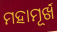
ମହାମୂର୍ଖ